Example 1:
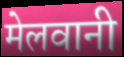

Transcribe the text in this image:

मेलवानी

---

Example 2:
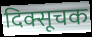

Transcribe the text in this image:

दिक्सूचक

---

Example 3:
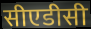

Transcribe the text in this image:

सीएडीसी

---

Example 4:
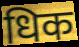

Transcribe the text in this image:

धिक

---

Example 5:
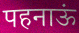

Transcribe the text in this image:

पहनाऊं